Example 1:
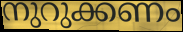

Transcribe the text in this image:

നുറുക്കണം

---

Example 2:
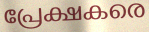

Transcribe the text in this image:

പ്രേക്ഷകരെ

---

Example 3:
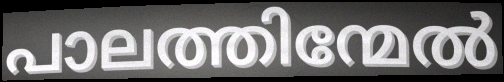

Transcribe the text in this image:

പാലത്തിന്മേൽ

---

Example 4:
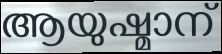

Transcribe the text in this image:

ആയുഷ്മാന്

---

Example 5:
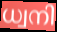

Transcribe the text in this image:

ധ്വനി